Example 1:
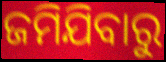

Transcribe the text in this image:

ଜମିଯିବାରୁ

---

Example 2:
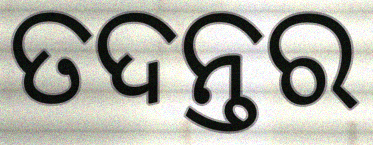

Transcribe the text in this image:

ତଦନ୍ତର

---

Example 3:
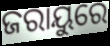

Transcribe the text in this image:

ଜରାୟୁରେ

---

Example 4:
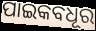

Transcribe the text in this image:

ପାଇକବଧୂର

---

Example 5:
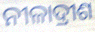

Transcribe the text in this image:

ନୀଳାଦ୍ରୀଶ